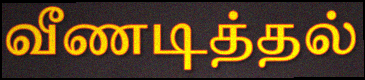
வீணடித்தல்